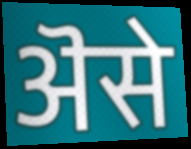
ऄसे